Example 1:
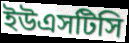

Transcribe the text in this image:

ইউএসটিসি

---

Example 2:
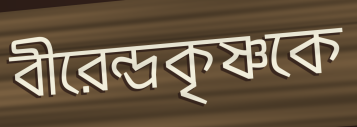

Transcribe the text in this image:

বীরেন্দ্রকৃষ্ণকে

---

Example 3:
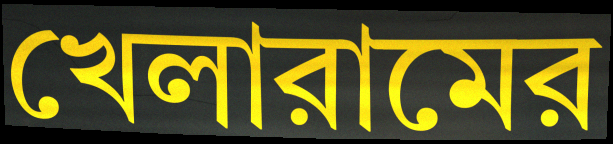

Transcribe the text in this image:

খেলারামের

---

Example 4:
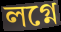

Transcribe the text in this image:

লগ্নে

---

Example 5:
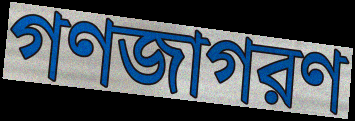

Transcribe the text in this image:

গণজাগরণ